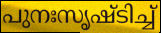
പുനഃസൃഷ്ടിച്ച്